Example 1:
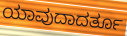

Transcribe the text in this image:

ಯಾವುದಾದರ್ತೂ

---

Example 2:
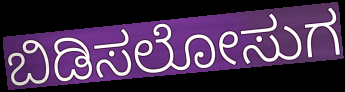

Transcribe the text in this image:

ಬಿಡಿಸಲೋಸುಗ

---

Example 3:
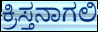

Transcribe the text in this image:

ಕ್ರಿಸ್ತನಾಗಲಿ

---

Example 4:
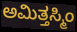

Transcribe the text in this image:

ಅಮಿತ್ತಸ್ಮಿಂ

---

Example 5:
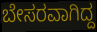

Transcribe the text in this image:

ಬೇಸರವಾಗಿದ್ದ